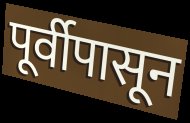
पूर्वीपासून